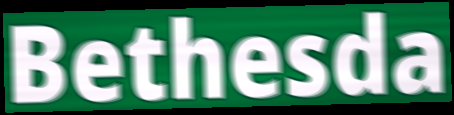
Bethesda